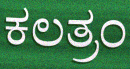
ಕಲತ್ರಂ